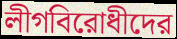
লীগবিরোধীদের